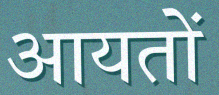
आयतों